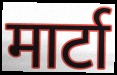
मार्टा